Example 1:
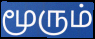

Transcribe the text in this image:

மூரும்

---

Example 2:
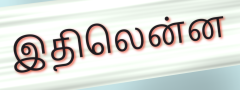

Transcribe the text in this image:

இதிலென்ன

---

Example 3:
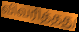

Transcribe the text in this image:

விவரித்தது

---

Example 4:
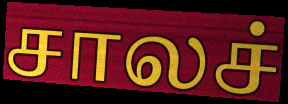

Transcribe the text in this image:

சாலச்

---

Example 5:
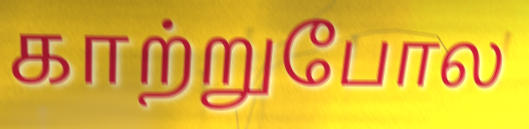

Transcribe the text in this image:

காற்றுபோல